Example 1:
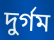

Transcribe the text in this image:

দুৰ্গম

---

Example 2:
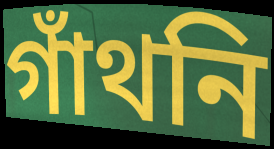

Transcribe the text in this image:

গাঁথনি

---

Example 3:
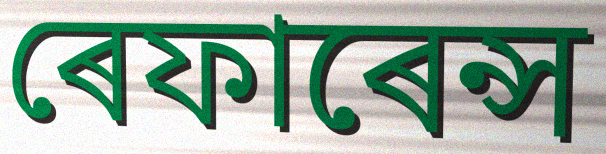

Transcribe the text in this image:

ৰেফাৰেন্স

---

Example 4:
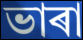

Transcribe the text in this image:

ভাৰা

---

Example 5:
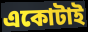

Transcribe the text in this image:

একোটাই